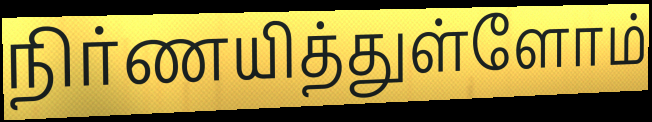
நிர்ணயித்துள்ளோம்